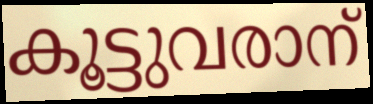
കൂട്ടുവരാന്